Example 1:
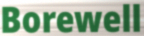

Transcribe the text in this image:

Borewell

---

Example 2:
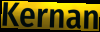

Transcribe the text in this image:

Kernan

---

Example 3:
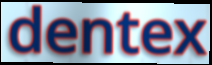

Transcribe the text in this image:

dentex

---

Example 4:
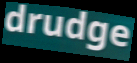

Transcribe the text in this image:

drudge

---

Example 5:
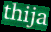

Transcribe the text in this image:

thija